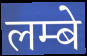
लम्बे